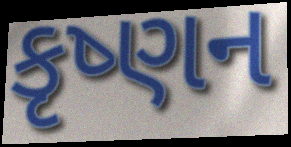
કૃષ્ણન